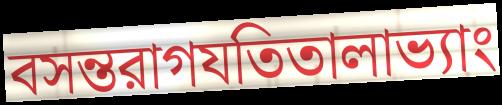
বসন্তরাগযতিতালাভ্যাং